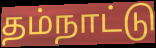
தம்நாட்டு